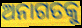
ଅନାଗତକୁ